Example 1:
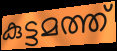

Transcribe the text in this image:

കുട്ടമത്ത്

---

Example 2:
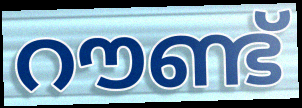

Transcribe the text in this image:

റൗണ്ട്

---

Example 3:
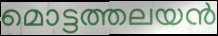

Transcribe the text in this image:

മൊട്ടത്തലയൻ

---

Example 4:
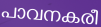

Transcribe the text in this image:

പാവനകരീ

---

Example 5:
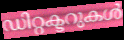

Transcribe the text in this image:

ഡിറ്റക്ടറുകൾ